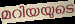
മറിയയുടെ